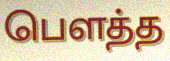
பௌத்த